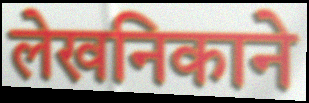
लेखनिकाने